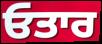
ਓਤਾਰ